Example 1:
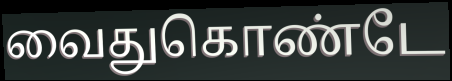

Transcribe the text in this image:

வைதுகொண்டே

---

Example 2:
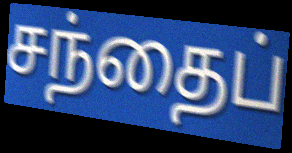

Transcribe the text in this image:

சந்தைப்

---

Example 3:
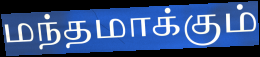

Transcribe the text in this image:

மந்தமாக்கும்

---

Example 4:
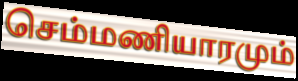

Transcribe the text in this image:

செம்மணியாரமும்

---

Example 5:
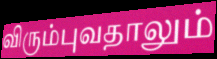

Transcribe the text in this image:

விரும்புவதாலும்